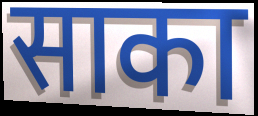
साका